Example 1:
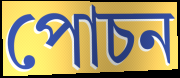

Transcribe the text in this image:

পোচন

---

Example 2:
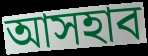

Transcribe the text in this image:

আসহাব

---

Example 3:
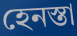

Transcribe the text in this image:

হেনস্তা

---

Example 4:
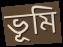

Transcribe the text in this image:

ভূমি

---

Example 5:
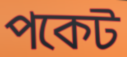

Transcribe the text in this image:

পকেট